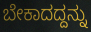
ಬೇಕಾದದ್ದನ್ನು